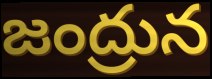
జంద్రున